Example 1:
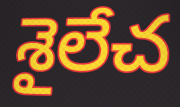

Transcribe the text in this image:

శైలేచ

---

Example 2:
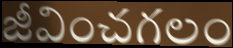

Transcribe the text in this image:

జీవించగలం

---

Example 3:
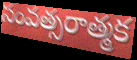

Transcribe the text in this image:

సంవత్సరాత్మక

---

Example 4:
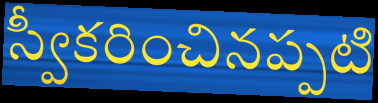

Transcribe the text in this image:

స్వీకరించినప్పటి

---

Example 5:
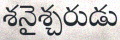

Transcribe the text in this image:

శనైశ్చరుడు